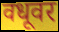
वधूवर